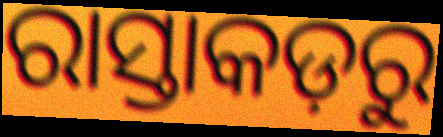
ରାସ୍ତାକଡ଼ରୁ